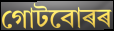
গোটবোৰৰ